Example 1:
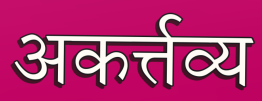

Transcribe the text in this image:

अकर्त्तव्य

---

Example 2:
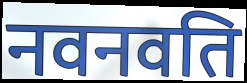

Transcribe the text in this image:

नवनवति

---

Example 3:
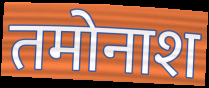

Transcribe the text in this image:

तमोनाश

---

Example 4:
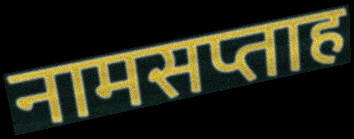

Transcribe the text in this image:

नामसप्ताह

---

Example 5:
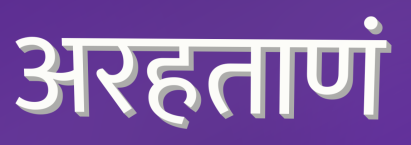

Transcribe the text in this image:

अरहताणं